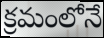
క్రమంలోనే